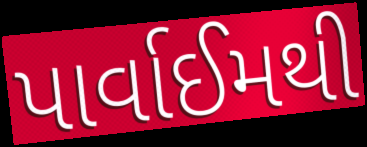
પાર્વાઈમથી